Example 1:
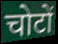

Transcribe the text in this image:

चोटों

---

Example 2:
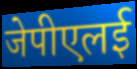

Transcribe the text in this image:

जेपीएलई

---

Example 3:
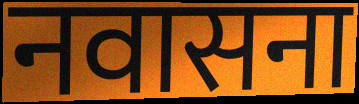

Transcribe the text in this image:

नवासना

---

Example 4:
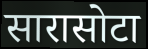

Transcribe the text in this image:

सारासोटा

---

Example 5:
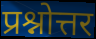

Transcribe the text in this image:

प्रश्नोत्तर